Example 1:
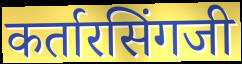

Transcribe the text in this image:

कर्तारसिंगजी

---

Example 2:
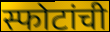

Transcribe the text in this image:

स्फोटांची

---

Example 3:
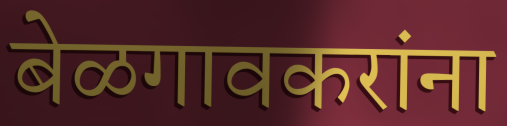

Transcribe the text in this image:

बेळगावकरांना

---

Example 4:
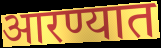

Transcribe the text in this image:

आरण्यात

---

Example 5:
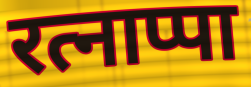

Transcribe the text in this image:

रत्नाप्पा